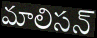
మాలిసన్